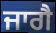
ਜਾਗੈ